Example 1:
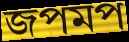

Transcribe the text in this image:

জপমপ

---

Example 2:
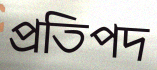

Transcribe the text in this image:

প্ৰতিপদ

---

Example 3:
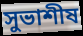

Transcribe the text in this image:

সুভাশীষ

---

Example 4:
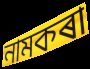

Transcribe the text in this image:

নামকৰা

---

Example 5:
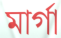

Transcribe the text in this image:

মাৰ্গা